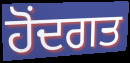
ਹੋਂਦਗਤ